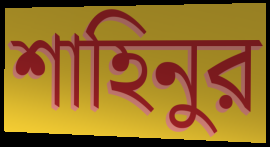
শাহিনুর